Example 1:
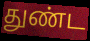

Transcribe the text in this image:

துண்ட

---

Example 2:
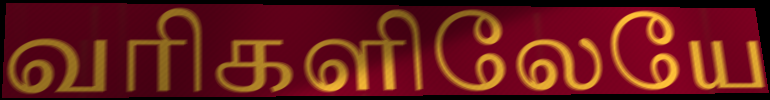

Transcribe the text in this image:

வரிகளிலேயே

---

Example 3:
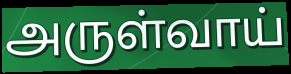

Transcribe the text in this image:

அருள்வாய்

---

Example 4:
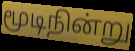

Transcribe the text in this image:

மூடிநின்று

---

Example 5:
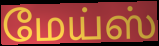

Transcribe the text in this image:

மேய்ஸ்